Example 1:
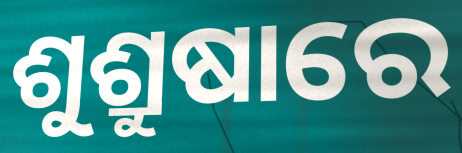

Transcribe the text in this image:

ଶୁଶ୍ରୁଷାରେ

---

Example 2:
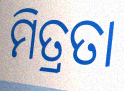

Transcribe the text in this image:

ମିତ୍ରତା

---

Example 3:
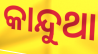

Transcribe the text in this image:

କାନ୍ଦୁଥା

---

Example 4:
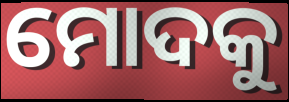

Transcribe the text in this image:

ମୋଦକୁ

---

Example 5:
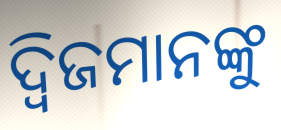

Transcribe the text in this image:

ଦ୍ଵିଜମାନଙ୍କୁ